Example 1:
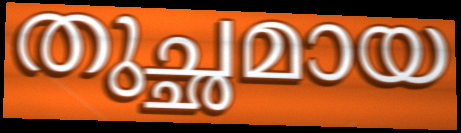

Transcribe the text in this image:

തുച്ഛമായ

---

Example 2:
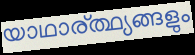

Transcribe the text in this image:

യാഥാര്ത്ഥ്യങ്ങളും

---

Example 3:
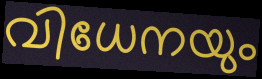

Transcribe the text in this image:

വിധേനയും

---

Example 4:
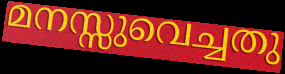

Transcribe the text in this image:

മനസ്സുവെച്ചതു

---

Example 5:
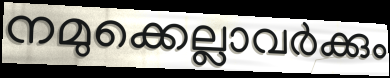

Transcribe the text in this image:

നമുക്കെല്ലാവർക്കും